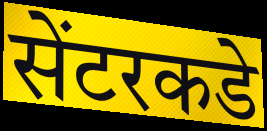
सेंटरकडे